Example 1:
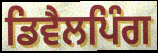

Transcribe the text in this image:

ਡਿਵੈਲਪਿੰਗ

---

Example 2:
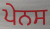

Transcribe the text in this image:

ਪੇਨਸ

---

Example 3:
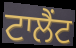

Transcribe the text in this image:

ਟਾਲੈਂਟ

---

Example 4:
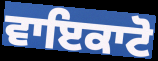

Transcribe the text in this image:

ਵਾਇਕਾਟੋ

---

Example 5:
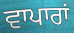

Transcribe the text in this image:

ਵਾਪਾਰਾਂ